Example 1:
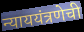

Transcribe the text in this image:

न्याययंत्रणेची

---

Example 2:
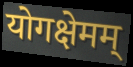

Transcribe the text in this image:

योगक्षेमम्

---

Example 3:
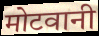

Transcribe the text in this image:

मोटवानी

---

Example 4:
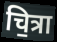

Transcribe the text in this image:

चि॒त्रा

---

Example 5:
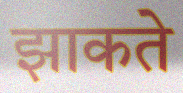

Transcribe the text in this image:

झाकते